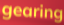
gearing